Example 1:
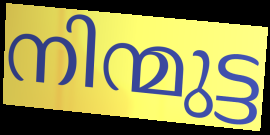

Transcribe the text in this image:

നിന്മുട്ട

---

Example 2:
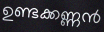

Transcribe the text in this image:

ഉണ്ടക്കണ്ണൻ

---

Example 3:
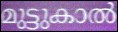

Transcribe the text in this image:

മുട്ടുകാൽ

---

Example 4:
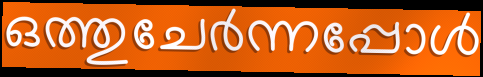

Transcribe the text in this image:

ഒത്തുചേർന്നപ്പോൾ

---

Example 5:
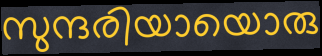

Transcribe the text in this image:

സുന്ദരിയായൊരു